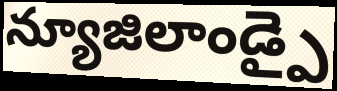
న్యూజిలాండ్పై